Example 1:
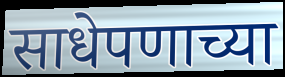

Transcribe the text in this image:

साधेपणाच्या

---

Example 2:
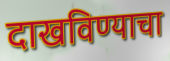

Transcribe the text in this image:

दाखविण्याचा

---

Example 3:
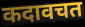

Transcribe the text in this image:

कदावचत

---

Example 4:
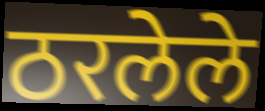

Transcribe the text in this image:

ठरलेले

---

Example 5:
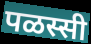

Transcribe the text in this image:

पळस्सी